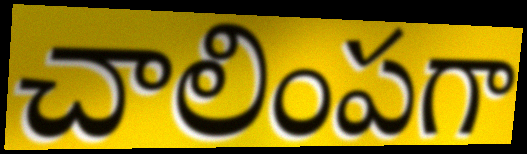
చాలింపగా